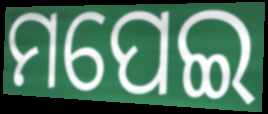
ମପେଇ